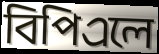
বিপিএলে